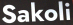
Sakoli